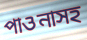
পাওনাসহ